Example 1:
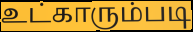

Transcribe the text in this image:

உட்காரும்படி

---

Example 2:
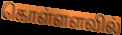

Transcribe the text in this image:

கொள்ளளவில்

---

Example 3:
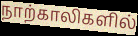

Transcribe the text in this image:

நாற்காலிகளில்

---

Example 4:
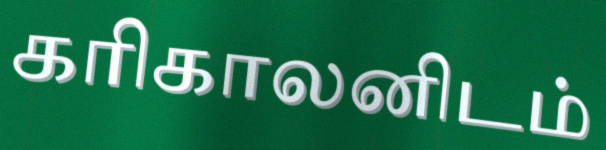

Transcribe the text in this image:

கரிகாலனிடம்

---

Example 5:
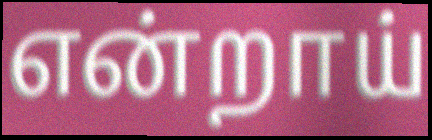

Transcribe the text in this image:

என்றாய்